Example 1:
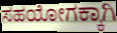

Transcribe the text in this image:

ಸಹಯೋಗಕ್ಕಾಗಿ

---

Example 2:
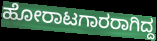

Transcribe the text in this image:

ಹೋರಾಟಗಾರರಾಗಿದ್ದ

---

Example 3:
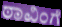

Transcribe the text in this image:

ಠಾವಿಂಗೆ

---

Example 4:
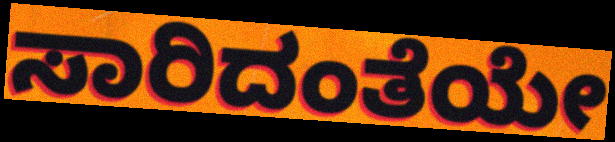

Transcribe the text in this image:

ಸಾರಿದಂತೆಯೇ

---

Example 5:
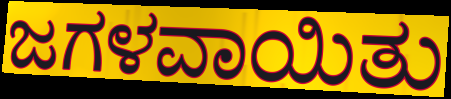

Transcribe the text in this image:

ಜಗಳವಾಯಿತು